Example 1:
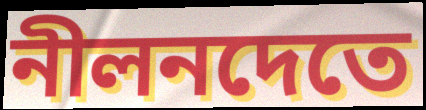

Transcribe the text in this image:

নীলনদেতে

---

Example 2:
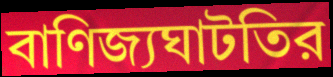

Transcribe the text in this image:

বাণিজ্যঘাটতির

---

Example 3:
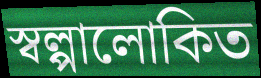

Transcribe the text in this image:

স্বল্পালোকিত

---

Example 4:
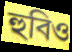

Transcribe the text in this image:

হুবিও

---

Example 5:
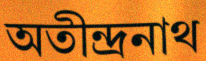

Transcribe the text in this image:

অতীন্দ্রনাথ